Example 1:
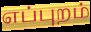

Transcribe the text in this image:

எப்புறம்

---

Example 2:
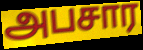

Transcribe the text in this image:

அபசார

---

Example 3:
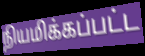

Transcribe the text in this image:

நியமிக்கப்பட்ட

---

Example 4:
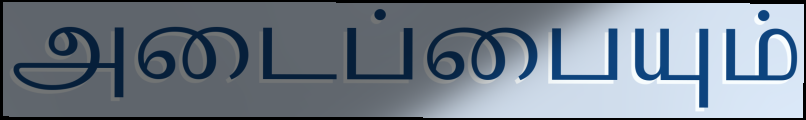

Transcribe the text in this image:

அடைப்பையும்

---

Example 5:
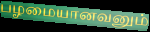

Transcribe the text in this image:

பழமையானவனும்